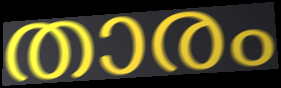
താരം